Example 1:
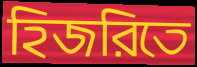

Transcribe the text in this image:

হিজরিতে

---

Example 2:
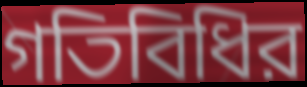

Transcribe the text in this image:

গতিবিধির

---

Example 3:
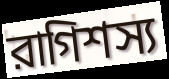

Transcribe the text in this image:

রাগিশস্য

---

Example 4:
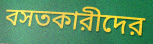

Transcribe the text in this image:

বসতকারীদের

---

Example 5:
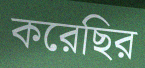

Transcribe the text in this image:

করেছির